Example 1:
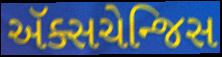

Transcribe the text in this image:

ઍક્સચેન્જિસ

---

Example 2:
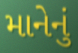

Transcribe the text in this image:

માનેનું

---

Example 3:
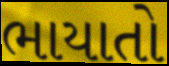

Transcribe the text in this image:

ભાયાતો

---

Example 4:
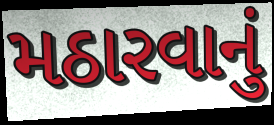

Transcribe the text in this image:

મઠારવાનું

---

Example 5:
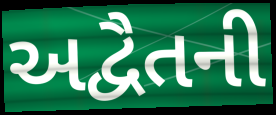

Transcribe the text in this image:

અદ્વૈતની